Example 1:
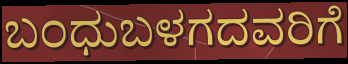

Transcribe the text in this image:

ಬಂಧುಬಳಗದವರಿಗೆ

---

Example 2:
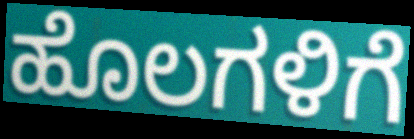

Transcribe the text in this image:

ಹೊಲಗಳಿಗೆ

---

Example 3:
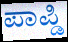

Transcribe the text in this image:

ಪಾಪ್ಡಿ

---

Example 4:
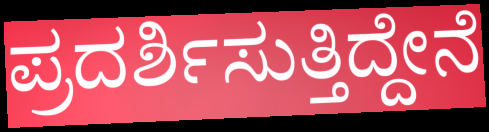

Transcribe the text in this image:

ಪ್ರದರ್ಶಿಸುತ್ತಿದ್ದೇನೆ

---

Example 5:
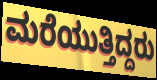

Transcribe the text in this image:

ಮರೆಯುತ್ತಿದ್ದರು